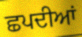
ਛਪਦੀਆਂ